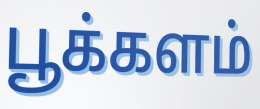
பூக்களம்